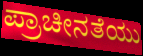
ಪ್ರಾಚೀನತೆಯು